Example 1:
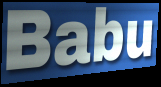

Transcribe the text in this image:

Babu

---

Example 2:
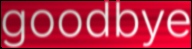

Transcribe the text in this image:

goodbye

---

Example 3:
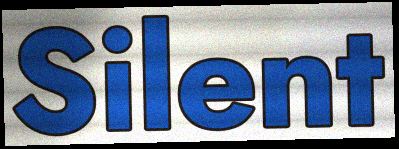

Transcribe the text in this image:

Silent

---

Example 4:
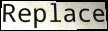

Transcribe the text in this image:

Replace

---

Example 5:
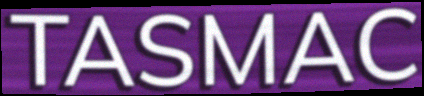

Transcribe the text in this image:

TASMAC